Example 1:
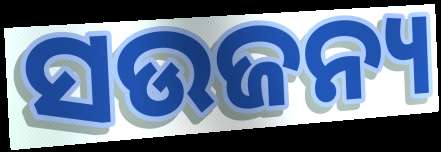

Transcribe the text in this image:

ସଉଜନ୍ୟ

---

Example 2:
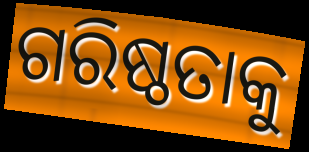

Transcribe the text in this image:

ଗରିଷ୍ଠତାକୁ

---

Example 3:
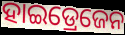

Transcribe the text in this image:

ହାଇଡ୍ରେଜେନ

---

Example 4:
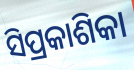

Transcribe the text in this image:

ସିପ୍ରକାଶିକା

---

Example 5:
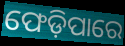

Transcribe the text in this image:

ଫେଡ଼ିପାରେ